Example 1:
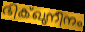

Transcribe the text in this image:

ഭിക്ഖുനീനം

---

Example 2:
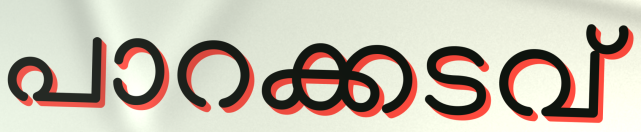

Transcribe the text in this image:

പാറക്കടവ്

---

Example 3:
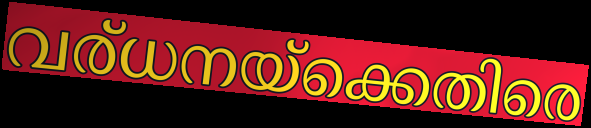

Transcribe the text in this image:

വര്ധനയ്ക്കെതിരെ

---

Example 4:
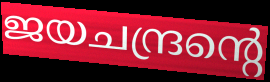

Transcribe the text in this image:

ജയചന്ദ്രന്റെ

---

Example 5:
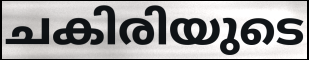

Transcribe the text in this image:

ചകിരിയുടെ